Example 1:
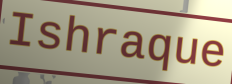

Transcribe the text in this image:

Ishraque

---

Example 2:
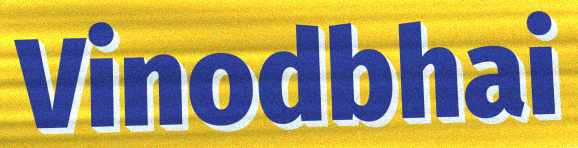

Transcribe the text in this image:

Vinodbhai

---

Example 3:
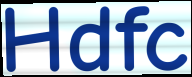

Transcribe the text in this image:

Hdfc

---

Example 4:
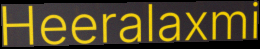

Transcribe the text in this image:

Heeralaxmi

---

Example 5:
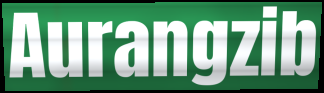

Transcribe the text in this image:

Aurangzib